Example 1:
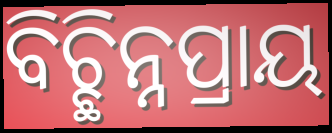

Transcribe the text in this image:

ବିଚ୍ଛିନ୍ନପ୍ରାୟ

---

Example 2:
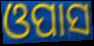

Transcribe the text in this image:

ଓପାସ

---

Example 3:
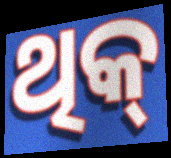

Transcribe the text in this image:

ଥିକ୍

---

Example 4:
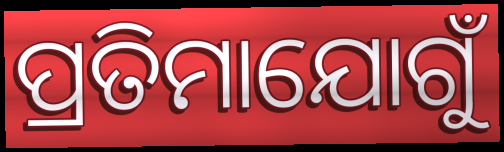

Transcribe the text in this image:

ପ୍ରତିମାଯୋଗୁଁ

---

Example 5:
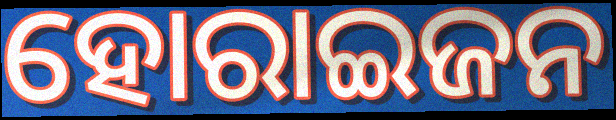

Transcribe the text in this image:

ହୋରାଇଜନ